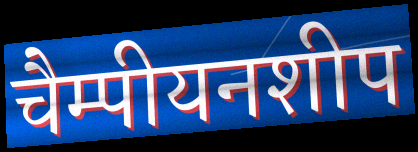
चैम्पीयनशीप